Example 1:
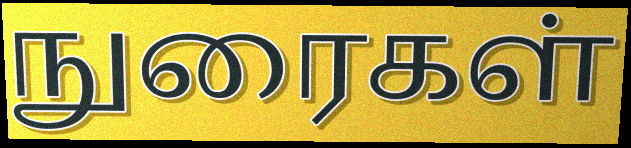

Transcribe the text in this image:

நுரைகள்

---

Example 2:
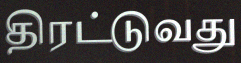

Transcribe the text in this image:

திரட்டுவது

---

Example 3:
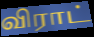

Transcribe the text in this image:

விராட்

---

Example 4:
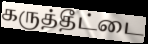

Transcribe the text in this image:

கருத்தீட்டை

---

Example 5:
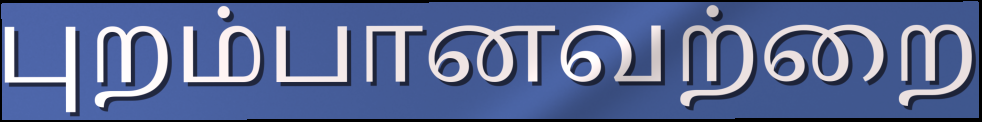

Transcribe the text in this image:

புறம்பானவற்றை